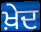
ਖ਼ੇਦ